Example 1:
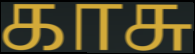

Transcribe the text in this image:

காசு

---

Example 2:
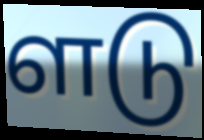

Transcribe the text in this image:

ளடு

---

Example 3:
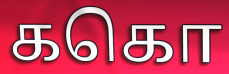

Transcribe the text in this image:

ககொ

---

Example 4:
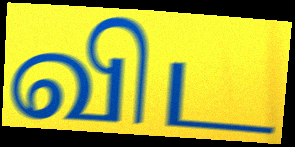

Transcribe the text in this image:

விட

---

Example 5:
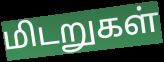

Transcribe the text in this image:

மிடறுகள்